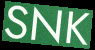
SNK